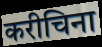
करीचिना